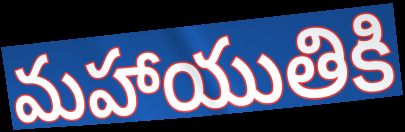
మహాయుతికి